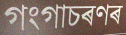
গংগাচৰণৰ